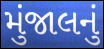
મુંજાલનું